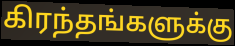
கிரந்தங்களுக்கு